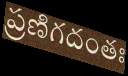
ప్రణిగదంతః